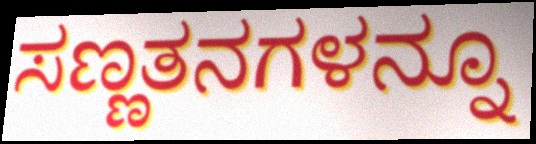
ಸಣ್ಣತನಗಳನ್ನೂ